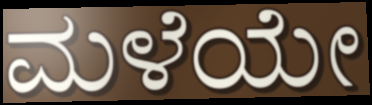
ಮಳೆಯೇ